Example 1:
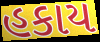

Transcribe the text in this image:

હકાય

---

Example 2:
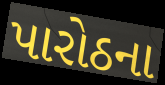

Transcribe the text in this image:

પારોઠના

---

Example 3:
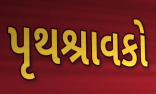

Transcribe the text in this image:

પૃથશ્રાવકો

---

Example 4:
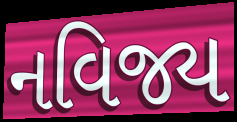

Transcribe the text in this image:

નવિજ્ય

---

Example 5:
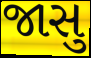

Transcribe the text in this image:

જાસુ